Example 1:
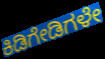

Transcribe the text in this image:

ಕಿಡಿಗೇಡಿಗಳೇ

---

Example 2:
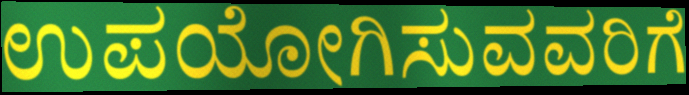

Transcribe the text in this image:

ಉಪಯೋಗಿಸುವವರಿಗೆ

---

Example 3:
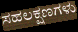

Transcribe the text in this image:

ಸಹಲಕ್ಷಣಗಳು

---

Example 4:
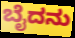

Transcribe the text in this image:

ಬೈದನು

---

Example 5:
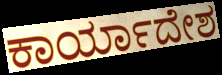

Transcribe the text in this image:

ಕಾರ್ಯಾದೇಶ